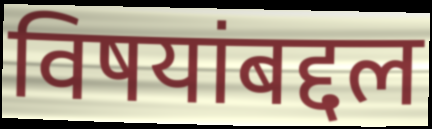
विषयांबद्दल